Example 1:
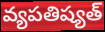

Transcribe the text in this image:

వ్యపతిష్యత్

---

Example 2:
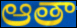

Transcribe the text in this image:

ఆతా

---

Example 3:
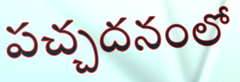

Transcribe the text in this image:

పచ్చదనంలో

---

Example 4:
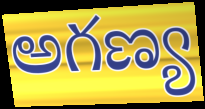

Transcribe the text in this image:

అగణ్య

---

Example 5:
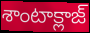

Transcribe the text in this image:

శాంటాక్లాజ్